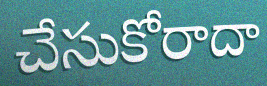
చేసుకోరాదా